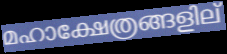
മഹാക്ഷേത്രങ്ങളില്